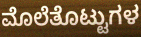
ಮೊಲೆತೊಟ್ಟುಗಳ